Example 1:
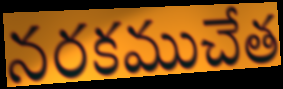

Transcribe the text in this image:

నరకముచేత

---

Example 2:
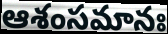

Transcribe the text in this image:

ఆశంసమానః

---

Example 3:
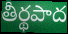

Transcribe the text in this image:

తీర్థపాద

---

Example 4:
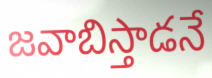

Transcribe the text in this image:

జవాబిస్తాడనే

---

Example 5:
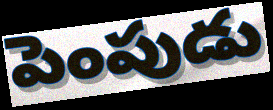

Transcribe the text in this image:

పెంపుడు